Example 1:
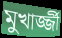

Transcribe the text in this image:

মুখার্জ্জী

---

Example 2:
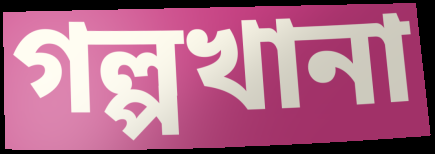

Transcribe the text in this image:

গল্পখানা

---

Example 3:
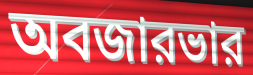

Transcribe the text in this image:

অবজারভার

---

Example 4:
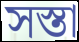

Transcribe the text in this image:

সস্তা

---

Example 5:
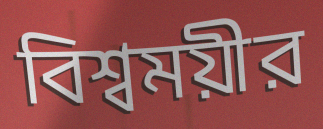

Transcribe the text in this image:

বিশ্বময়ীর